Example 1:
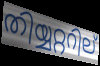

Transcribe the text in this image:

തിയ്യറ്ററില്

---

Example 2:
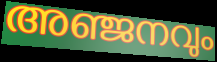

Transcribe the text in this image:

അഞ്ജനവും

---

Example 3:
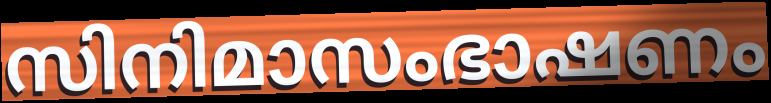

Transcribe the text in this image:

സിനിമാസംഭാഷണം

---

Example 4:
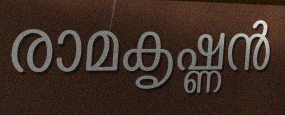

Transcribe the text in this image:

രാമകൃഷ്ണൻ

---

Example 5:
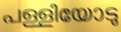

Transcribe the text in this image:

പള്ളിയോടു